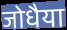
जोधैया